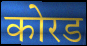
कोरड